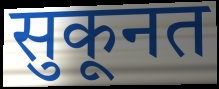
सुकूनत